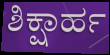
ಶಿಕ್ಷಾರ್ಹ